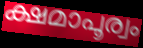
ക്ഷമാപൂര്വം